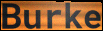
Burke